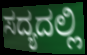
ಸದ್ಯದಲ್ಲಿ